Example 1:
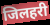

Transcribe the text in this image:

जिलहरी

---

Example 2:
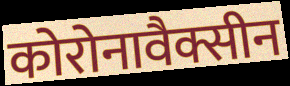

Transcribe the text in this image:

कोरोनावैक्सीन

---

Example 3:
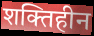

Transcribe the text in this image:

शक्तिहीन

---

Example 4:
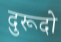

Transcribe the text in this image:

दुरूदो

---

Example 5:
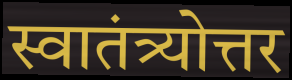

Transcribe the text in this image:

स्वातंत्र्योत्तर